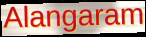
Alangaram